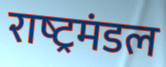
राष्ट्रमंडल